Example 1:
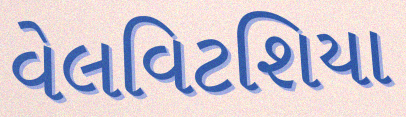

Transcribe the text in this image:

વેલવિટશિયા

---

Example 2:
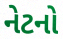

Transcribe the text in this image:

નેટનો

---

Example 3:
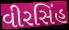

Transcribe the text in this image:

વીરસિંહ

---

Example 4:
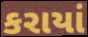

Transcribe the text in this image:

કરાયાં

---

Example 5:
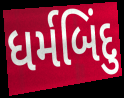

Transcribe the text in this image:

ધર્મબિંદુ